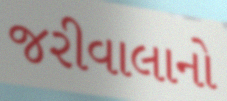
જરીવાલાનો